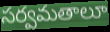
సర్వమతాలూ